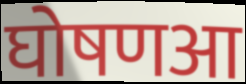
घोषणआ